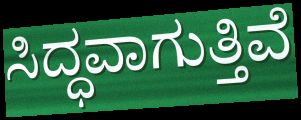
ಸಿದ್ಧವಾಗುತ್ತಿವೆ